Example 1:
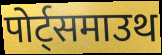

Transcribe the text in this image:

पोर्ट्समाउथ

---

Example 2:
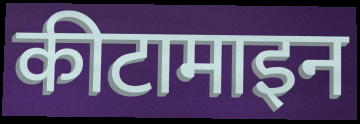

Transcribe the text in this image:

कीटामाइन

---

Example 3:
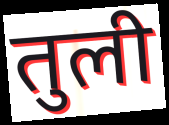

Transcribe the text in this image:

तुली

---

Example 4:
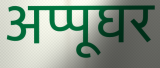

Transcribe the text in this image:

अप्पूघर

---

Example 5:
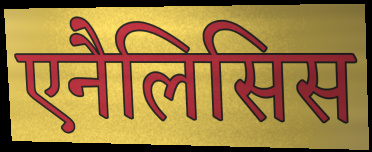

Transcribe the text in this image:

एनैलिसिस